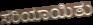
ಸರಿಯಾಯಿತು